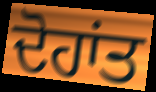
ਦੋਹਾਂਤ